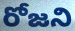
రోజని